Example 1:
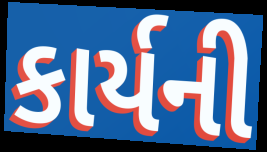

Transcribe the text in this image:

કાર્યની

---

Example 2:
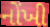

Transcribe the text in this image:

નોંખી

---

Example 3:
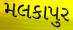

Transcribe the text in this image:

મલકાપુર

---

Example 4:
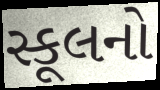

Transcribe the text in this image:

સ્કૂલનો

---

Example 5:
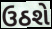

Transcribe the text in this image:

ઉઠશે